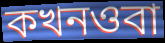
কখনওবা